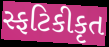
સ્ફટિકીકૃત